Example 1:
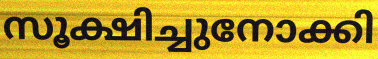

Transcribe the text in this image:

സൂക്ഷിച്ചുനോക്കി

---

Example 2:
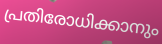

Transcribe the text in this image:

പ്രതിരോധിക്കാനും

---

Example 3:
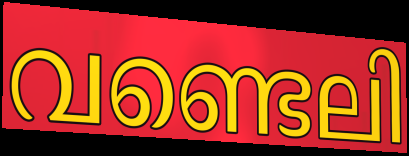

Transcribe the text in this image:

വണ്ടെലി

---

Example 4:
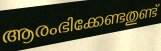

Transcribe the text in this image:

ആരംഭിക്കേണ്ടതുണ്ട്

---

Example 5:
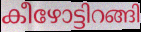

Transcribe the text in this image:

കീഴോട്ടിറങ്ങി